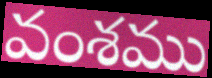
వంశము